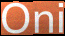
Oni